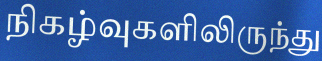
நிகழ்வுகளிலிருந்து